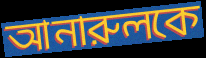
আনারুলকে